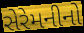
સેરેમનીનો